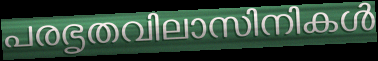
പരഭൃതവിലാസിനികൾ